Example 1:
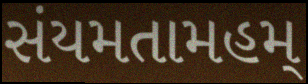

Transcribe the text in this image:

સંયમતામહમ્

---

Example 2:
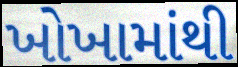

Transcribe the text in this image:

ખોખામાંથી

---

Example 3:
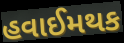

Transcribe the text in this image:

હવાઈમથક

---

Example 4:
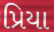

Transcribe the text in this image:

પ્રિયા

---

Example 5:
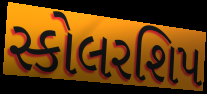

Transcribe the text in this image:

સ્કોલરશિપ